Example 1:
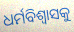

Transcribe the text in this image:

ଧର୍ମବିଶ୍ୱାସକୁ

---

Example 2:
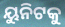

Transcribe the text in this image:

ୟୁନିଟକୁ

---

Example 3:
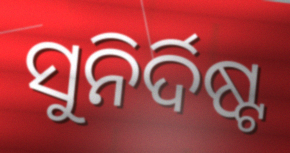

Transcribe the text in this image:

ସୁନିର୍ଦିଷ୍ଟ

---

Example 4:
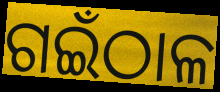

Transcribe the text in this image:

ଗଇଁଠାଳ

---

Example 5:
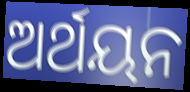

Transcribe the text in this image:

ଅର୍ଥୟନ